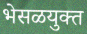
भेसळयुक्त